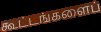
கூட்டங்களைப்